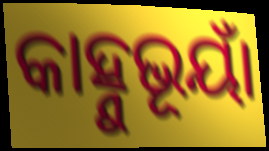
କାହ୍ନୁଭୂୟାଁ